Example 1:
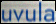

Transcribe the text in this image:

uvula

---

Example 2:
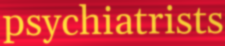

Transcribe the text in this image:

psychiatrists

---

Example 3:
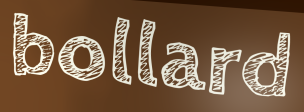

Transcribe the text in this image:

bollard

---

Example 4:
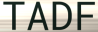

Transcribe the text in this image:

TADF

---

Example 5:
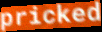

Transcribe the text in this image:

pricked